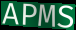
APMS